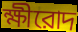
ক্ষীরোদ